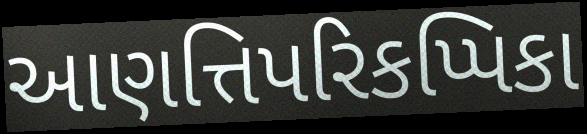
આણત્તિપરિકપ્પિકા